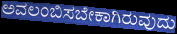
ಅವಲಂಬಿಸಬೇಕಾಗಿರುವುದು